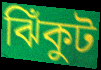
ঝিঁকুট